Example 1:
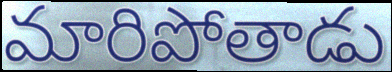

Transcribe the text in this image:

మారిపోతాడు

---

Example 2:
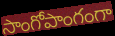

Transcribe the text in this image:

సాంగోపాంగంగా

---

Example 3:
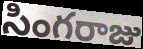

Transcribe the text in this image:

సింగరాజు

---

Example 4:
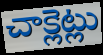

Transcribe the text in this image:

చాక్లెట్లు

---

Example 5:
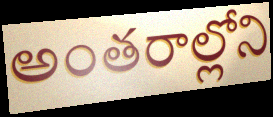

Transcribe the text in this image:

అంతరాల్లోని